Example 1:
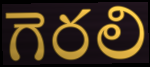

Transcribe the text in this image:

గెరలి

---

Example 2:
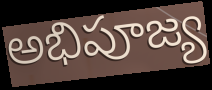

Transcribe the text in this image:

అభిపూజ్య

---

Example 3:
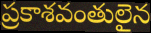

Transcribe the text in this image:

ప్రకాశవంతులైన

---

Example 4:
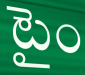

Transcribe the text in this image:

టైం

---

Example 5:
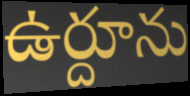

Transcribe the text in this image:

ఉర్దూను